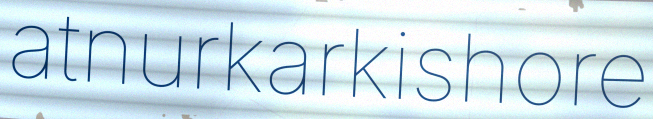
atnurkarkishore